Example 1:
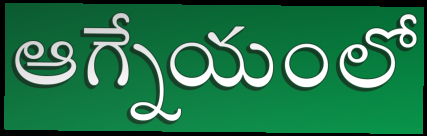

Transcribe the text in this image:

ఆగ్నేయంలో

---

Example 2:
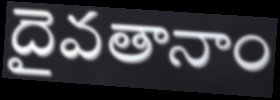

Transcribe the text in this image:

దైవతానాం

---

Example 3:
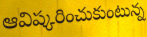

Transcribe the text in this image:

ఆవిష్కరించుకుంటున్న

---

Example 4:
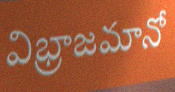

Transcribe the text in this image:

విభ్రాజమానో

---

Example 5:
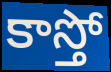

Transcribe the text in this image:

కాస్తో